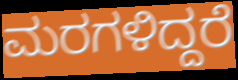
ಮರಗಳಿದ್ದರೆ